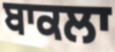
ਬਾਕਲਾ